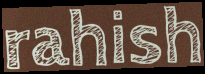
rahish